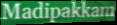
Madipakkam